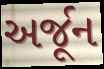
અર્જૂન